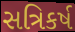
સત્રિકર્ષ